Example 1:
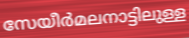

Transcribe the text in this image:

സേയീർമലനാട്ടിലുള്ള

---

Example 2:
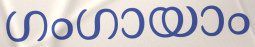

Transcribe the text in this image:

ഗംഗായാം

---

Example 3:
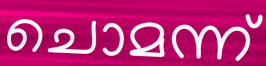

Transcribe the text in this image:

ചൊമന്ന്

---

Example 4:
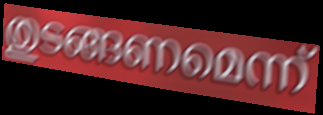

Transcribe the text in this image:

തുടങ്ങണമെന്ന്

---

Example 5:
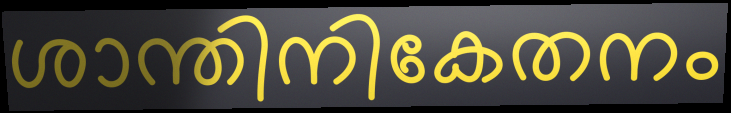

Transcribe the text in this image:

ശാന്തിനികേതനം